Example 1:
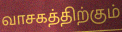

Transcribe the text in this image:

வாசகத்திற்கும்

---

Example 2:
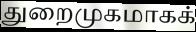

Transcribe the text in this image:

துறைமுகமாகக்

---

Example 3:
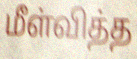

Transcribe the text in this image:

மீள்வித்த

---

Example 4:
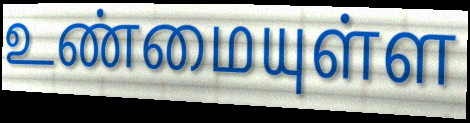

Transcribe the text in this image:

உண்மையுள்ள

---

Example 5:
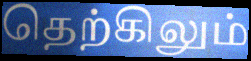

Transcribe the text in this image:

தெற்கிலும்